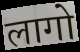
लागो